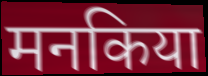
मनकिया